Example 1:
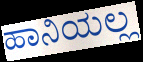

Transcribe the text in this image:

ಹಾನಿಯಲ್ಲ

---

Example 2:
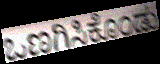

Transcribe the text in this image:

ಒಣಗಿಸಿಕೊಂಡು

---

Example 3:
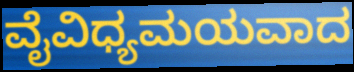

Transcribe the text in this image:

ವೈವಿಧ್ಯಮಯವಾದ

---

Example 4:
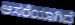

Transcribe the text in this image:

ಆಸರೆಯಾಗಿದೆ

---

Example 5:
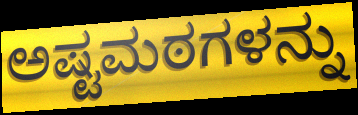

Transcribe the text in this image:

ಅಷ್ಟಮಠಗಳನ್ನು